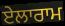
ਏਲਾਰਾਮ